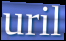
uril